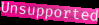
Unsupported